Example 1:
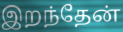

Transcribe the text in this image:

இறந்தேன்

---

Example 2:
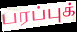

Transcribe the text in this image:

பரப்புக்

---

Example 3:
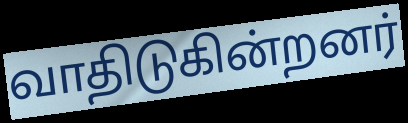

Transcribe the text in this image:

வாதிடுகின்றனர்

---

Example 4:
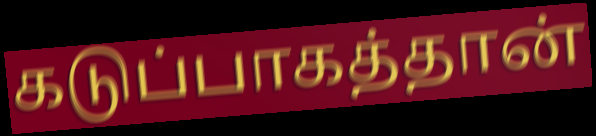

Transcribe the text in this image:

கடுப்பாகத்தான்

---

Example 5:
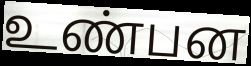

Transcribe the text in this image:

உண்பன